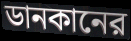
ডানকানের